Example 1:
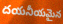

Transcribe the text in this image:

దయనీయమైన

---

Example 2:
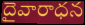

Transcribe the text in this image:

దైవారాధన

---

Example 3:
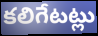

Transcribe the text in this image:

కలిగేటట్లు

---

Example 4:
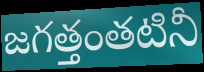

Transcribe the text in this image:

జగత్తంతటినీ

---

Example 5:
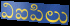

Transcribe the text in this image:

విఐపిలు